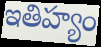
ఇతిహ్యం